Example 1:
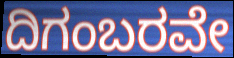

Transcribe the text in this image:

ದಿಗಂಬರವೇ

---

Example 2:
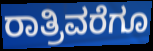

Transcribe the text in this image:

ರಾತ್ರಿವರೆಗೂ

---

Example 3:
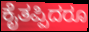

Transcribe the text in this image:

ಕೈತಪ್ಪಿದರೂ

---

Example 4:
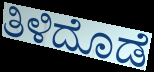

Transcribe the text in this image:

ತಿಳಿದೊಡೆ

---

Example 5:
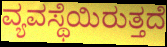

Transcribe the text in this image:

ವ್ಯವಸ್ಥೆಯಿರುತ್ತದೆ